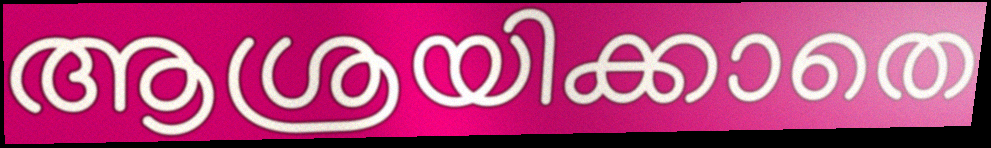
ആശ്രയിക്കാതെ